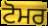
ਟੋਮਰ